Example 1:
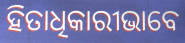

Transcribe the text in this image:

ହିତାଧିକାରୀଭାବେ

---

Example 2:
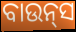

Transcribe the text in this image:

ବାଉନ୍‍ସ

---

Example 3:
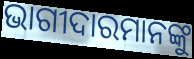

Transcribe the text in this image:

ଭାଗୀଦାରମାନଙ୍କୁ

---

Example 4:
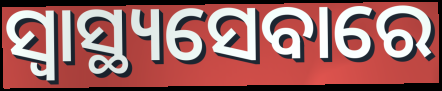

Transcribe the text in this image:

ସ୍ୱାସ୍ଥ୍ୟସେବାରେ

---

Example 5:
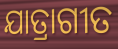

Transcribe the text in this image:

ଯାତ୍ରାଗୀତ